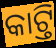
କାଟ୍ତି